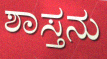
ಶಾಸ್ತನು